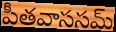
పీతవాససమ్